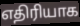
எதிரியாக